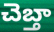
చెబ్తా